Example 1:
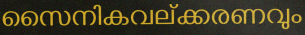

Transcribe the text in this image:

സൈനികവല്ക്കരണവും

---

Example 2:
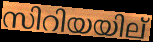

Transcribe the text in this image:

സിറിയയില്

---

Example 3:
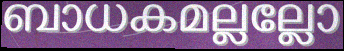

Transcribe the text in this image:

ബാധകമല്ലല്ലോ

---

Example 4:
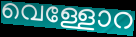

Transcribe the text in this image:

വെള്ളോറ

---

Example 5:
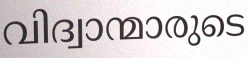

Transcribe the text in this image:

വിദ്വാന്മാരുടെ